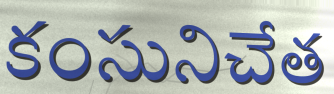
కంసునిచేత